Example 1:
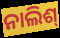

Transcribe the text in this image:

ନାଲିଶ୍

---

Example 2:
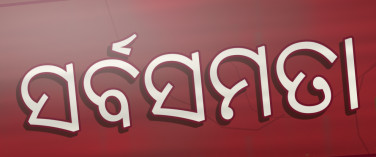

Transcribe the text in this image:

ସର୍ବସମତା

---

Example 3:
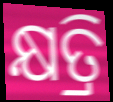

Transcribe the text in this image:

କ୍ଷତ୍ରି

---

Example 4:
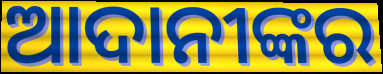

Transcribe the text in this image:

ଆଦାନୀଙ୍କର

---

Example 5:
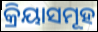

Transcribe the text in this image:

କ୍ରିୟାସମୂହ